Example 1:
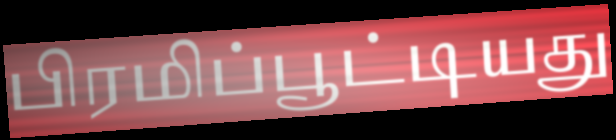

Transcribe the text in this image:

பிரமிப்பூட்டியது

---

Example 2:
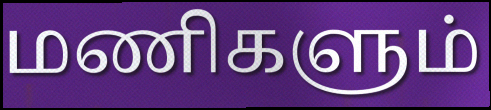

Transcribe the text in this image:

மணிகளும்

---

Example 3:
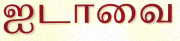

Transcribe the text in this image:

ஐடாவை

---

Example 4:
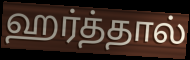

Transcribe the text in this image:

ஹர்த்தால்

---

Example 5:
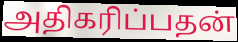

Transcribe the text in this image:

அதிகரிப்பதன்